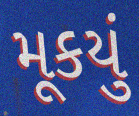
મૂકયું